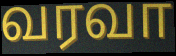
வரவா